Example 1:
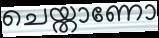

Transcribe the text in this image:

ചെയ്താണോ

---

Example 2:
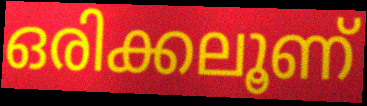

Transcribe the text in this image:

ഒരിക്കലൂണ്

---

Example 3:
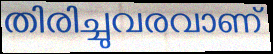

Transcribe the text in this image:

തിരിച്ചുവരവാണ്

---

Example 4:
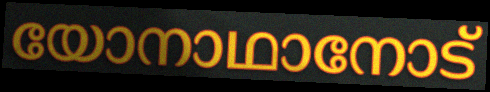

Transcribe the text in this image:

യോനാഥാനോട്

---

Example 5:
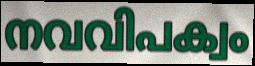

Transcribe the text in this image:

നവവിപക്വം